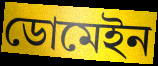
ডোমেইন